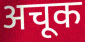
अचूक